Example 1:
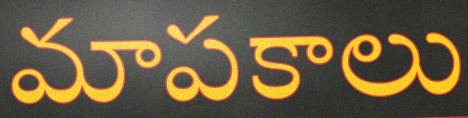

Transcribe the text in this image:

మాపకాలు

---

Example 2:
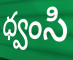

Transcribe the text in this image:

ధ్వంసి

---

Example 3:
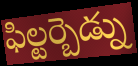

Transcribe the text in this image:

ఫిల్టర్బెడ్ను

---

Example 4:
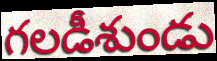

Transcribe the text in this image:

గలడీశుండు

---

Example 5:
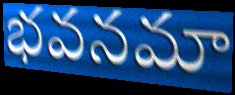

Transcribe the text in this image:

భవనమా